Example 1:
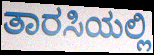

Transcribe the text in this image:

ತಾರಸಿಯಲ್ಲಿ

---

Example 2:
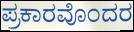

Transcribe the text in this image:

ಪ್ರಕಾರವೊಂದರ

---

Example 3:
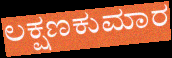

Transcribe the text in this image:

ಲಕ್ಷಣಕುಮಾರ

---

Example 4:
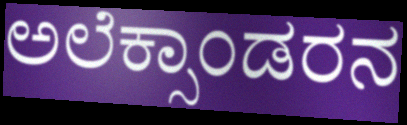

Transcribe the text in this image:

ಅಲೆಕ್ಸಾಂಡರನ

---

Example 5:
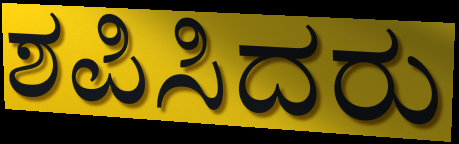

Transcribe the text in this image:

ಶಪಿಸಿದರು